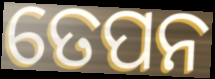
ତେପନ